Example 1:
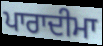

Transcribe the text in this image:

ਪਾਰਾਦੀਮਾ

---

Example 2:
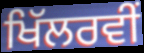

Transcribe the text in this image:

ਖਿੱਲਰਵੀਂ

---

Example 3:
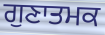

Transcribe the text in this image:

ਗੁਣਾਤਮਕ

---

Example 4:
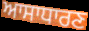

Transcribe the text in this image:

ਆਸਾਧਾਰਣ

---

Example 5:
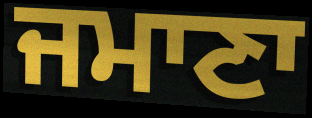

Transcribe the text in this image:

ਜਮਾਣਾ